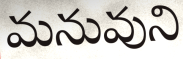
మనువుని